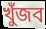
খুঁজব